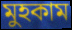
মুহকাম